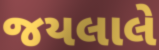
જયલાલે